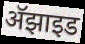
ॲझाइड